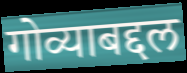
गोव्याबद्दल